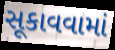
સૂકાવવામાં